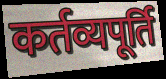
कर्तव्यपूर्ति